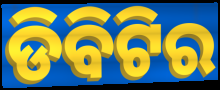
ଡିବିଟିର